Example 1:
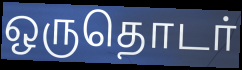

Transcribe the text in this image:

ஒருதொடர்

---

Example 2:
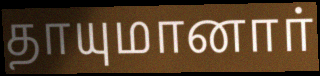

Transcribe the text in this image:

தாயுமானார்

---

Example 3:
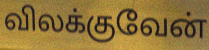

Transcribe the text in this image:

விலக்குவேன்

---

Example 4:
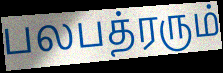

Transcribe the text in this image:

பலபத்ரரும்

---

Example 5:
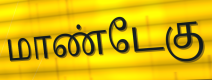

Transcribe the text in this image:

மாண்டேகு